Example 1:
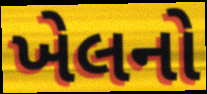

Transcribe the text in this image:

ખેલનો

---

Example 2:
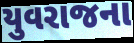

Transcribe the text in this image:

યુવરાજના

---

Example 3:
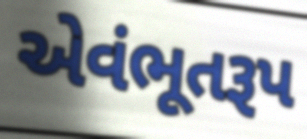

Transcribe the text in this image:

એવંભૂતરૂપ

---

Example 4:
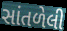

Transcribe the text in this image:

સાંતળેલી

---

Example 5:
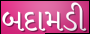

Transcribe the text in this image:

બદામડી